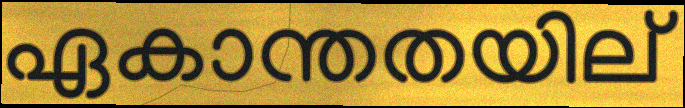
ഏകാന്തതയില്